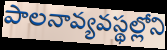
పాలనావ్యవస్థల్లోని